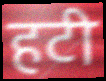
हटी